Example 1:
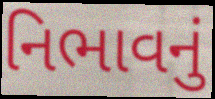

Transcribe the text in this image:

નિભાવનું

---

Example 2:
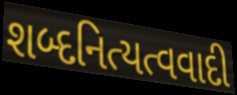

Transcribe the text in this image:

શબ્દનિત્યત્વવાદી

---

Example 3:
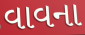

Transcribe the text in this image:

વાવના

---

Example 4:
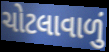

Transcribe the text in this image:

ચોટલાવાળું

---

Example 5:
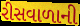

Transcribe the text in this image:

રીસવાળાની